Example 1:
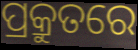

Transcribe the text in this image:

ପ୍ରକ୍ରୁତରେ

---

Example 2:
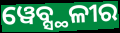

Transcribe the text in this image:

ୱେବ୍ସ୍ଥଳୀର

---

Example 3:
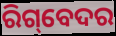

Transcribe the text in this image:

ରିଗ୍‌ବେଦର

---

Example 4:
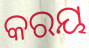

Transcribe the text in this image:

କରୟ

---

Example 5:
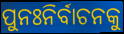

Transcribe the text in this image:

ପୁନଃନିର୍ବାଚନକୁ